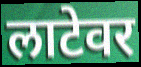
लाटेवर